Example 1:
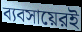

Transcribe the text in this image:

ব্যবসায়েরই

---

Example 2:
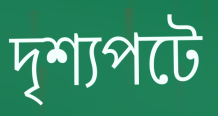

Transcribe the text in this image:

দৃশ্যপটে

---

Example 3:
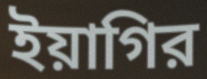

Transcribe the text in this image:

ইয়াগির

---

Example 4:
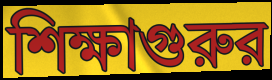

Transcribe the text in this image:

শিক্ষাগুরুর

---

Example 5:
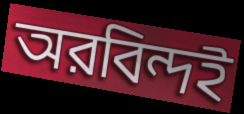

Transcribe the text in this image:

অরবিন্দই